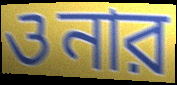
ওনার